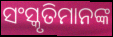
ସଂସ୍କୃତିମାନଙ୍କ